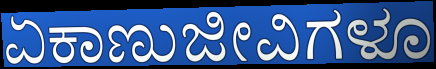
ಏಕಾಣುಜೀವಿಗಳೂ